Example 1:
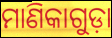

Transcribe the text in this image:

ମାଣିକାଗୁଡ଼ା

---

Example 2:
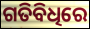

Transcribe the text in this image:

ଗତିବିଧିରେ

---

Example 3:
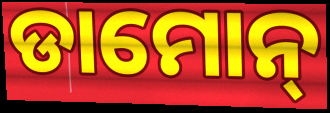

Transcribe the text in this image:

ଡାମୋନ୍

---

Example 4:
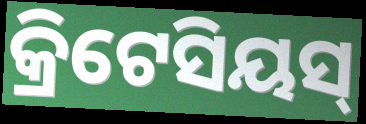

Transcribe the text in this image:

କ୍ରିଟେସିୟସ୍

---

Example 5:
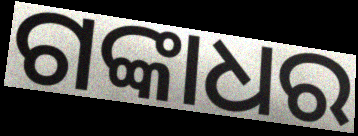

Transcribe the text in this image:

ଗଙ୍କାଧର